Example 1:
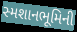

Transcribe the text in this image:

સ્મશાનભૂમિની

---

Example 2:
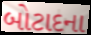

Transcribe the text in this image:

બોટાદના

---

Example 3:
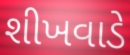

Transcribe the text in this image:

શીખવાડે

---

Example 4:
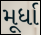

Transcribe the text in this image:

મૂર્ધા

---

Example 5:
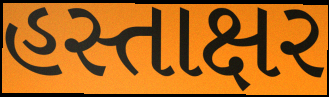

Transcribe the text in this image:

હસ્તાક્ષર